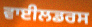
ਵਾਈਲਡਰਸ